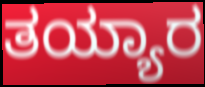
ತಯ್ಯಾರ